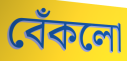
বেঁকলো